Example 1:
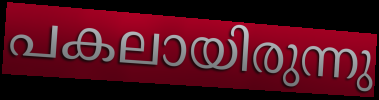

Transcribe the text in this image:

പകലായിരുന്നു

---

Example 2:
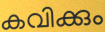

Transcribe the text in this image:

കവിക്കും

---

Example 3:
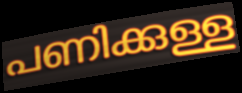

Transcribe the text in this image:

പണിക്കുള്ള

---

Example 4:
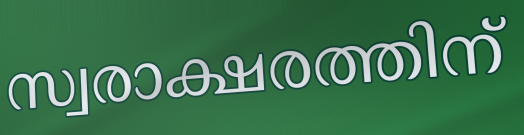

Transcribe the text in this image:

സ്വരാക്ഷരത്തിന്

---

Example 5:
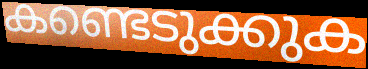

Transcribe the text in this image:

കണ്ടെടുക്കുക